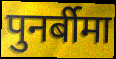
पुनर्बीमा